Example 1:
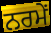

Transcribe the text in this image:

ਨਰਮੇਂ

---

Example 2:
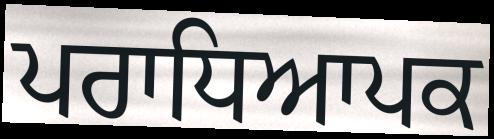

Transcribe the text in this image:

ਪਰਾਧਿਆਪਕ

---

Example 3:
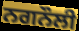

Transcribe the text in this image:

ਨਗਨੌਲੀ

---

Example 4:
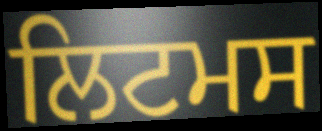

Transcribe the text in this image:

ਲਿਟਮਸ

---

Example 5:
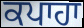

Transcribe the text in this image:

ਕਪਾਹਾ